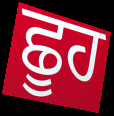
ਛੂਹ